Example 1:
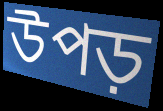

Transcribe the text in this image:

উপড়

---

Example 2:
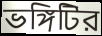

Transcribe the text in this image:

ভঙ্গিটির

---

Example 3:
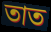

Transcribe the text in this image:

তাত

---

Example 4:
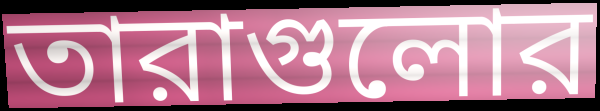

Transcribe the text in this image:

তারাগুলোর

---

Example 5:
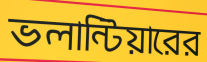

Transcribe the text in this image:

ভলান্টিয়ারের